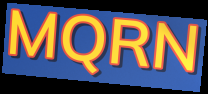
MQRN